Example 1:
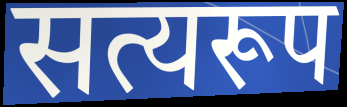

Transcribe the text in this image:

सत्यरूप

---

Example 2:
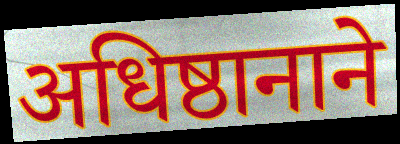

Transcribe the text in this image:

अधिष्ठानाने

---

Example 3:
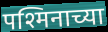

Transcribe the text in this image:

पश्मिनाच्या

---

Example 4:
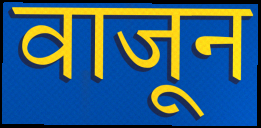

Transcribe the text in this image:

वाजून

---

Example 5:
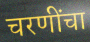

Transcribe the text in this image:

चरणींचा